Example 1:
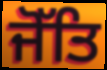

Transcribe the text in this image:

ਜੋੱਤਿ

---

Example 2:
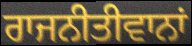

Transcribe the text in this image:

ਰਾਜਨੀਤੀਵਾਨਾਂ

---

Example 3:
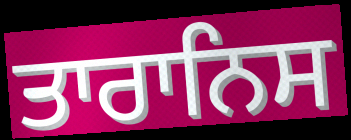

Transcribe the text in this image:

ਤਾਰਾਨਿਸ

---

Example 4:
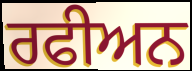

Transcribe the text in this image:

ਰਫੀਅਨ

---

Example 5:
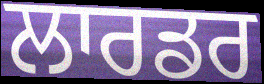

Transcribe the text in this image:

ਲਾਰਡਰ